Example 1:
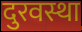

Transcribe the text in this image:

दुरवस्था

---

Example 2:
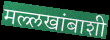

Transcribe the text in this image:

मल्लखांबाशी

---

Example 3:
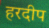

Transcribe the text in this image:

हरदीप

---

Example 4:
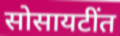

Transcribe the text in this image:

सोसायटींत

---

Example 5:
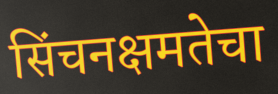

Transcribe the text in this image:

सिंचनक्षमतेचा